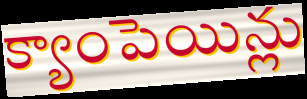
క్యాంపెయిన్లు